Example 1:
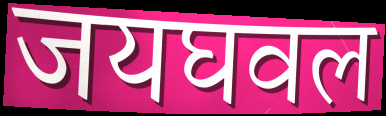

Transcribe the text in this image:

जयघवल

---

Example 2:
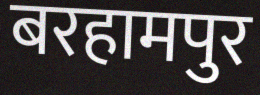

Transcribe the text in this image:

बरहामपुर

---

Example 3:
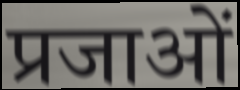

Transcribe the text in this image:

प्रजाओं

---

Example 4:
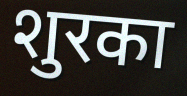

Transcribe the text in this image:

शुरका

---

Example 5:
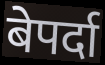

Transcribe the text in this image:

बेपर्दा